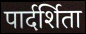
पार्दर्शिता